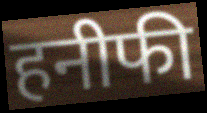
हनीफी